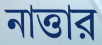
নাত্তার